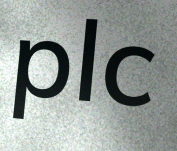
plc